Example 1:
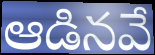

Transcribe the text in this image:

ఆడినవే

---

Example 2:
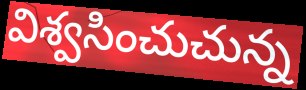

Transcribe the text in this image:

విశ్వసించుచున్న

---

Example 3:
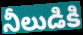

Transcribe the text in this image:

నీలుడికి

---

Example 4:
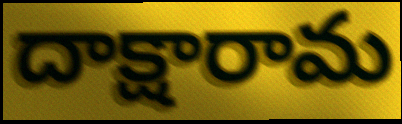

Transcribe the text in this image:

దాక్షారామ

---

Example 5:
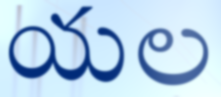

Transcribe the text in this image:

యల